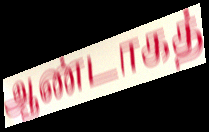
ஆண்டாகத்